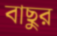
বাছুর